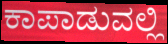
ಕಾಪಾಡುವಲ್ಲಿ